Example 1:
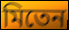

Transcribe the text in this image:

মিতেন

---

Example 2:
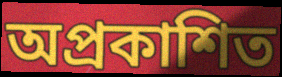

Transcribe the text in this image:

অপ্রকাশিত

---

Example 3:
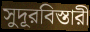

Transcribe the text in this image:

সুদূরবিস্তারী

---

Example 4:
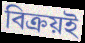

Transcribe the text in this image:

বিক্রয়ই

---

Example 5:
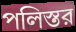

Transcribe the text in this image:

পলিস্তর